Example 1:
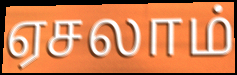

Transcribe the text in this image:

ஏசலாம்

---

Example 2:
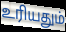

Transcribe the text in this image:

உரியதும்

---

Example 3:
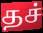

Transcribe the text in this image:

தச்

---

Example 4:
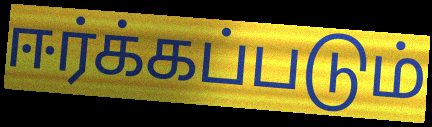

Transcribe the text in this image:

ஈர்க்கப்படும்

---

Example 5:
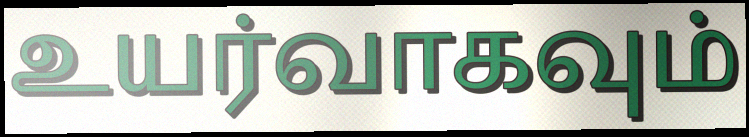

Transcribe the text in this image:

உயர்வாகவும்